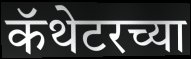
कॅथेटरच्या